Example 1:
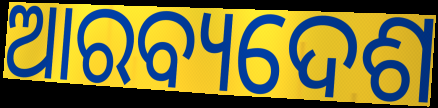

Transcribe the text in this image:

ଆରବ୍ୟଦେଶ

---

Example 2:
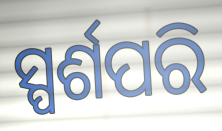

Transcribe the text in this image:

ସ୍ପର୍ଶପରି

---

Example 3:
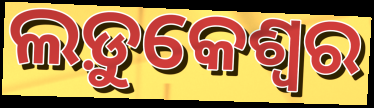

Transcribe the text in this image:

ଲଡ଼ୁକେଶ୍ୱର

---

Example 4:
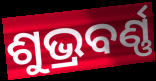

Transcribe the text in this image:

ଶୁଭ୍ରବର୍ଣ୍ଣ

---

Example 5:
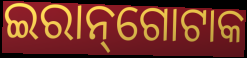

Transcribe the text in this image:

ଇରାନ୍‌ଗୋଟାକ